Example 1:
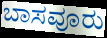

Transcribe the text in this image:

ಬಾಸವೂರು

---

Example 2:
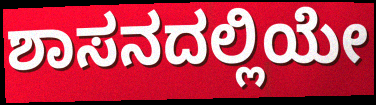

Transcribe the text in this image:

ಶಾಸನದಲ್ಲಿಯೇ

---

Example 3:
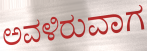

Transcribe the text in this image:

ಅವಳಿರುವಾಗ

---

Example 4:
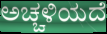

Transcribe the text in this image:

ಅಚ್ಚಳಿಯದೆ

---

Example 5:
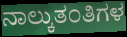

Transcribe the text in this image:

ನಾಲ್ಕುತಂತಿಗಳ